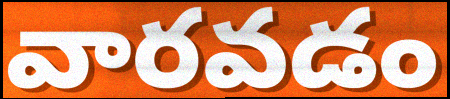
వారవడం